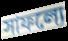
সাফল্যে